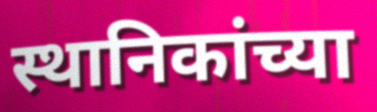
स्थानिकांच्या